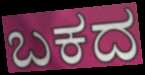
ಬಕದ